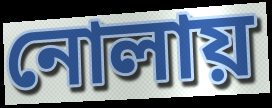
নোলায়